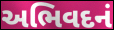
અભિવદનં